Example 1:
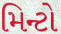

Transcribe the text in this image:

મિન્ટો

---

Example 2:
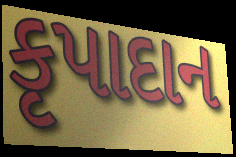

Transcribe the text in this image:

કૃપાદાન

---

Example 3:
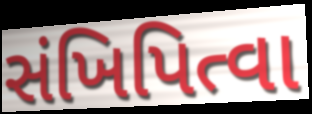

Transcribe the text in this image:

સંખિપિત્વા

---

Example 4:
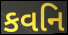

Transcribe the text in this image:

કવનિ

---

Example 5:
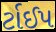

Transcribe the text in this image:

ર્ટાઈપ